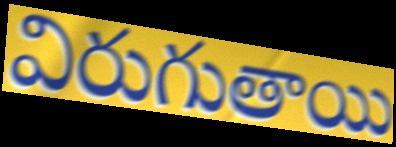
విరుగుతాయి